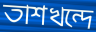
তাশখন্দে